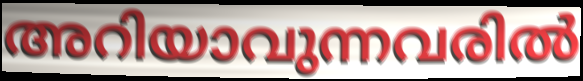
അറിയാവുന്നവരിൽ